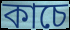
কাচে